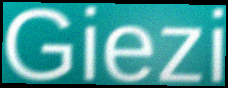
Giezi